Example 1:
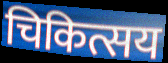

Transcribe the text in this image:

चिकित्सय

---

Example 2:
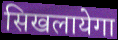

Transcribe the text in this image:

सिखलायेगा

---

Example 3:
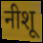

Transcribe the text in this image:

नीशू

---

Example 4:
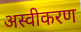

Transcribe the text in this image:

अस्वीकरण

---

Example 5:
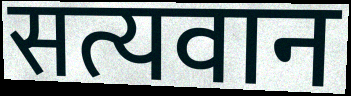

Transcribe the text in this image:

सत्यवान